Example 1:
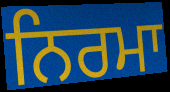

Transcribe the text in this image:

ਨਿਰਮਾ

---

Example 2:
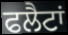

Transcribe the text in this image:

ਫਲੈਟਾਂ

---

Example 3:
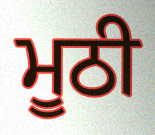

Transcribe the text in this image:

ਮੂਠੀ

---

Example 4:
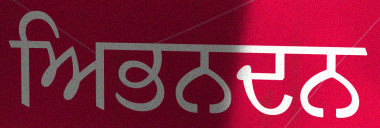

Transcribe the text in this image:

ਅਿਭਨਦਨ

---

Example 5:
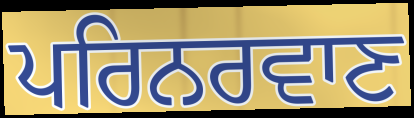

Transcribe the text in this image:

ਪਰਿਨਰਵਾਣ